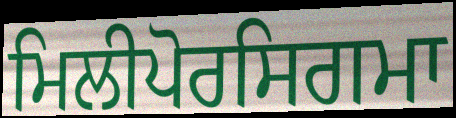
ਮਿਲੀਪੋਰਸਿਗਮਾ